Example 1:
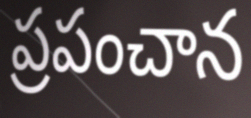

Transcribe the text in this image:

ప్రపంచాన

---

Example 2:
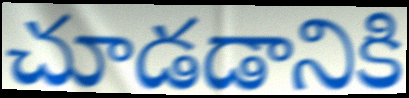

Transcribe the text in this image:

చూడడానికి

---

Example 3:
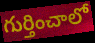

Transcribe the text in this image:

గుర్తించాలో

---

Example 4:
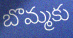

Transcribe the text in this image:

బొమ్మకు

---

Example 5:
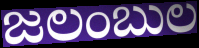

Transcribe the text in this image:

జలంబుల